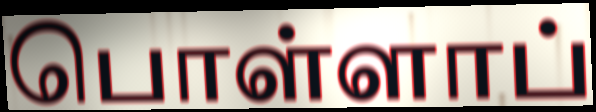
பொள்ளாப்